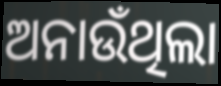
ଅନାଉଁଥିଲା